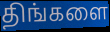
திங்களை